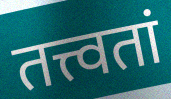
तत्त्वतां